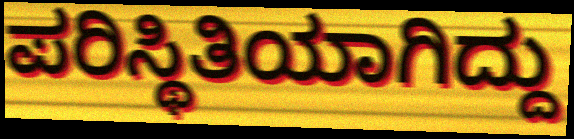
ಪರಿಸ್ಥಿತಿಯಾಗಿದ್ದು